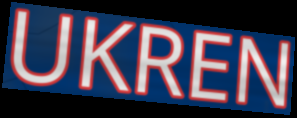
UKREN